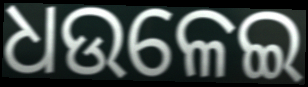
ଧଉଳେଇ